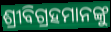
ଶ୍ରୀବିଗ୍ରହମାନଙ୍କୁ